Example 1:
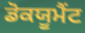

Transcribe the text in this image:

ਡੋਕਯੂਮੈਂਟ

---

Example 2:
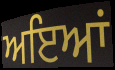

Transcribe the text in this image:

ਅਇਆਂ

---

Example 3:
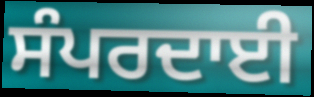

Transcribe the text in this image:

ਸੰਪਰਦਾਈ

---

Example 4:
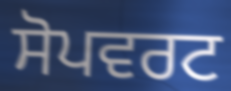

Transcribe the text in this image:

ਸੋਪਵਰਟ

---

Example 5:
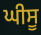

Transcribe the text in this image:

ਘੀਸੂ